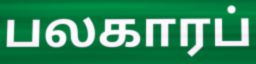
பலகாரப்